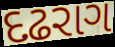
દઢરાગ